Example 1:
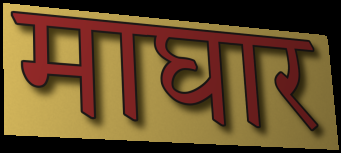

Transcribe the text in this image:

माघार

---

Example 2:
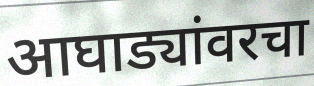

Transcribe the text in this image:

आघाड्यांवरचा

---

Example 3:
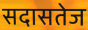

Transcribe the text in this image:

सदासतेज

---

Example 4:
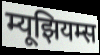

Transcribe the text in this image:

म्यूझियम्स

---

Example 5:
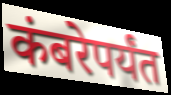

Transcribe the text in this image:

कंबरेपर्यंत